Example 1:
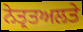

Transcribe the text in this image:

ਨੇਤ੍ਰਤਅਲਤੇ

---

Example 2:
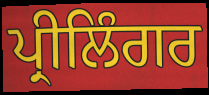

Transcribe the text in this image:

ਪ੍ਰੀਲਿੰਗਰ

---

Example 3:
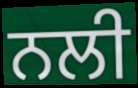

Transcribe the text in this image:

ਨਲੀ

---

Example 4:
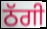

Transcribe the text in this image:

ਠੱਗੀ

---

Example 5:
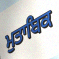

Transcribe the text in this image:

ਮੁਤਾਬਿਕ